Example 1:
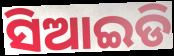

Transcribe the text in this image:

ସିଆଇଡି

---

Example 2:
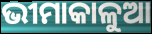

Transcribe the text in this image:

ଭୀମାକାଳୁଆ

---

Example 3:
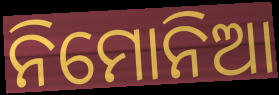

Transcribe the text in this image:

ନିମୋନିଆ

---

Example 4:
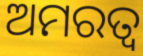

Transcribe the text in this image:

ଅମରତ୍ବ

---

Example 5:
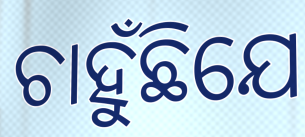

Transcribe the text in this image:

ଚାହୁଁଛିଯେ